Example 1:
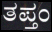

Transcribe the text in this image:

ತಪ್ತಂ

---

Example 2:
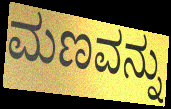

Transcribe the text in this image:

ಮಣವನ್ನು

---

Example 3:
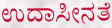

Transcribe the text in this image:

ಉದಾಸೀನತೆ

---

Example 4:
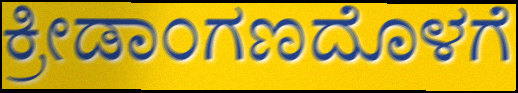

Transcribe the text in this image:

ಕ್ರೀಡಾಂಗಣದೊಳಗೆ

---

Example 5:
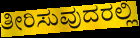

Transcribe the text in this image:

ತೀರಿಸುವುದರಲ್ಲಿ